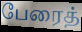
பேரைத்